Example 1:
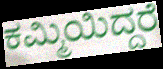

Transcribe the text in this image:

ಕಮ್ಮಿಯಿದ್ದರೆ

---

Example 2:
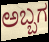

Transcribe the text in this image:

ಅಬ್ಬಗ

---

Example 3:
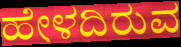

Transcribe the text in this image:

ಹೇಳದಿರುವ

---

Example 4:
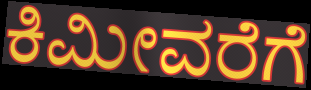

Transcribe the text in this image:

ಕಿಮೀವರೆಗೆ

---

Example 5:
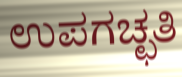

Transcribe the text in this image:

ಉಪಗಚ್ಛತಿ